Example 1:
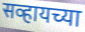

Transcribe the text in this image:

सव्हायच्या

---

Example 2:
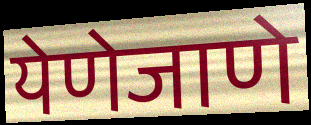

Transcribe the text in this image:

येणेजाणे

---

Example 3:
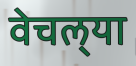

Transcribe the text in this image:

वेचल्या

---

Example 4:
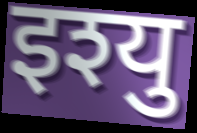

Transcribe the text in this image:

इश्यु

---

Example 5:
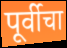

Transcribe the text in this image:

पूर्वीचा